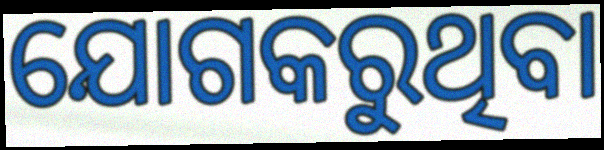
ଯୋଗକରୁଥିବା